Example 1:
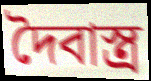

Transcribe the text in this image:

দৈবাস্ত্র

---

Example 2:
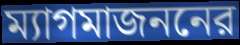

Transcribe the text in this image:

ম্যাগমাজননের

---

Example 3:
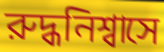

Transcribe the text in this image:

রুদ্ধনিশ্বাসে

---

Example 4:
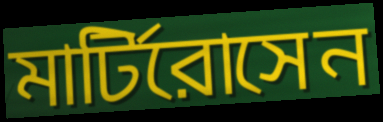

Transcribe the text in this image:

মার্টিরোসেন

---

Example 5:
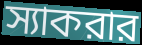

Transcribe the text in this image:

স্যাকরার